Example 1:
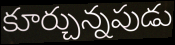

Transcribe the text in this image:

కూర్చున్నపుడు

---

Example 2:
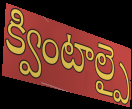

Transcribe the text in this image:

క్వింటాల్పై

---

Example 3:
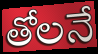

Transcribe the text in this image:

తోలనే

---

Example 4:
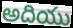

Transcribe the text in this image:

అదియు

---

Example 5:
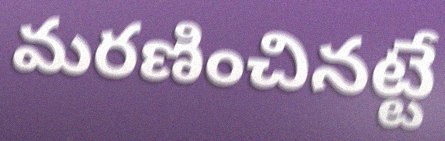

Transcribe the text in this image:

మరణించినట్టే